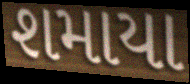
શમાયા